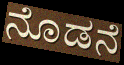
ನೊಡನೆ